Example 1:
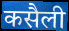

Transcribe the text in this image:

कसैली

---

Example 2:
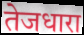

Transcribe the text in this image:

तेजधारा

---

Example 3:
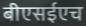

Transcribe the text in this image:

बीएसईएच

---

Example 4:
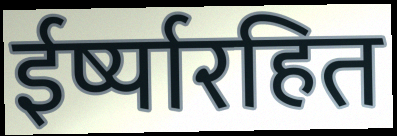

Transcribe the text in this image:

ईर्ष्यारहित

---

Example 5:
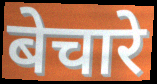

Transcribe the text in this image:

बेचारे